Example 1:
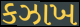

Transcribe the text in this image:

કઝાખ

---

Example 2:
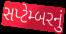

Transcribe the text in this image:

સપ્ટેમ્બરનું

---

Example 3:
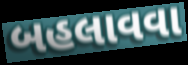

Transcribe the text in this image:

બહલાવવા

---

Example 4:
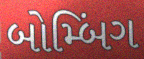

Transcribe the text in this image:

બોમ્બિંગ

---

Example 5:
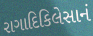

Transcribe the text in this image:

રાગાદિકિલેસાનં